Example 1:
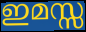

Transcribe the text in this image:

ഇമസ്സ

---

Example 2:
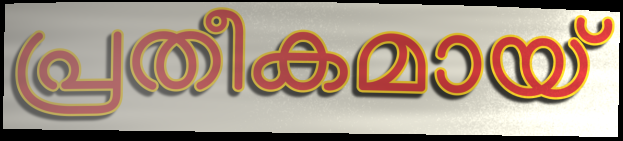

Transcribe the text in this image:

പ്രതീകമായ്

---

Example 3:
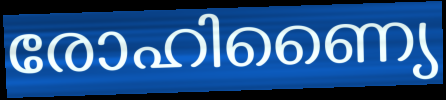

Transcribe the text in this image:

രോഹിണ്യൈ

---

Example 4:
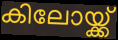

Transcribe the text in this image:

കിലോയ്ക്ക്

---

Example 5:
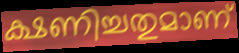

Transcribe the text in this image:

ക്ഷണിച്ചതുമാണ്